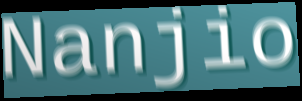
Nanjio